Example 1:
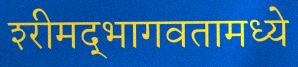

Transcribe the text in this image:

श्रीमद्‌भागवतामध्ये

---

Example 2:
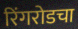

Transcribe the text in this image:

रिंगरोडचा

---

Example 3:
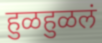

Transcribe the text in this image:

हुळहुळलं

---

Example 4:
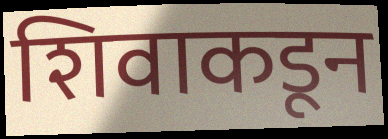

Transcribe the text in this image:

शिवाकडून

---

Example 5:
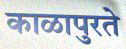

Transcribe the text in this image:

काळापुरते